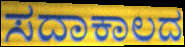
ಸದಾಕಾಲದ